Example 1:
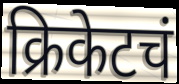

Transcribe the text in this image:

क्रिकेटचं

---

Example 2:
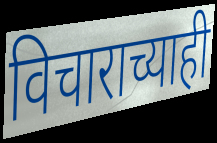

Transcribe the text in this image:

विचाराच्याही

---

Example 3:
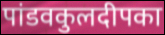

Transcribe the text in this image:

पांडवकुलदीपका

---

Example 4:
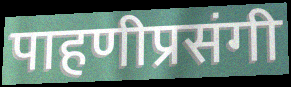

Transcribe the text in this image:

पाहणीप्रसंगी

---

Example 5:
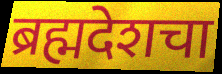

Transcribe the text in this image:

ब्रह्मदेशचा